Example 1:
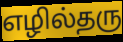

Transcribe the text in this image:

எழில்தரு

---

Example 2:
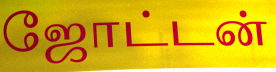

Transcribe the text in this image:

ஜோட்டன்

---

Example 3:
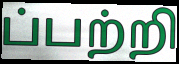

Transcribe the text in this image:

ப்பற்றி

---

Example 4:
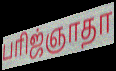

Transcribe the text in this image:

பரிஜ்ஞாதா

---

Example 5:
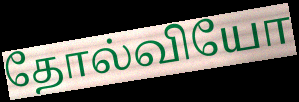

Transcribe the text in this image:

தோல்வியோ